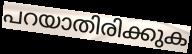
പറയാതിരിക്കുക